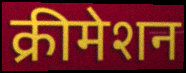
क्रीमेशन